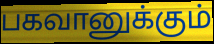
பகவானுக்கும்